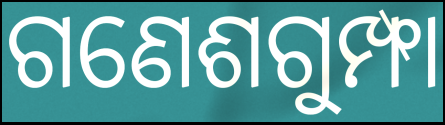
ଗଣେଶଗୁମ୍ଫା